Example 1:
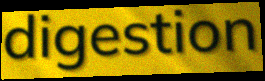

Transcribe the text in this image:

digestion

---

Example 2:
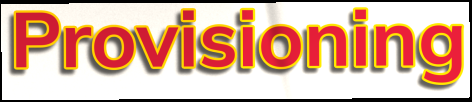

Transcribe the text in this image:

Provisioning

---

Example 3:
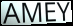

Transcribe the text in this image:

AMEY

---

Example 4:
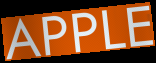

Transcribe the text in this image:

APPLE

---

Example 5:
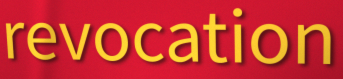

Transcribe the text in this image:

revocation